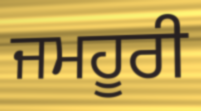
ਜਮਹੂਰੀ